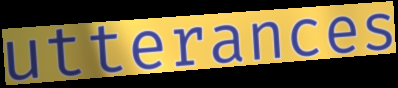
utterances